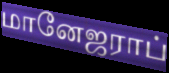
மானேஜராப்